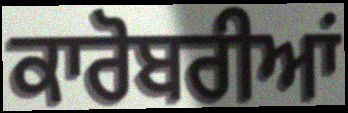
ਕਾਰੋਬਰੀਆਂ